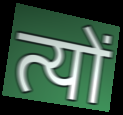
त्यों